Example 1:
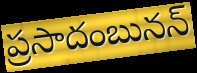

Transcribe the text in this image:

ప్రసాదంబునన్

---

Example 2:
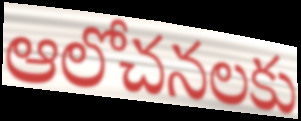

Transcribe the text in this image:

ఆలోచనలకు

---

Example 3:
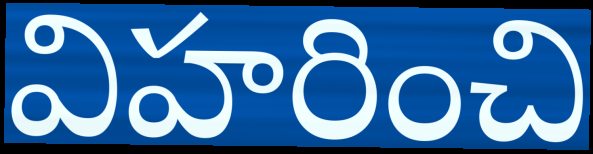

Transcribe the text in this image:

విహరించి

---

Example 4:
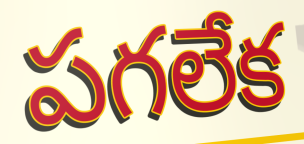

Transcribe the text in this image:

పగలేక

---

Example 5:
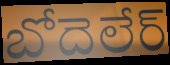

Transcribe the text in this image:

బోదెలేర్